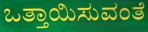
ಒತ್ತಾಯಿಸುವಂತೆ